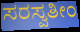
ಸರಸ್ವತೀಂ